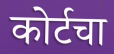
कोर्टचा